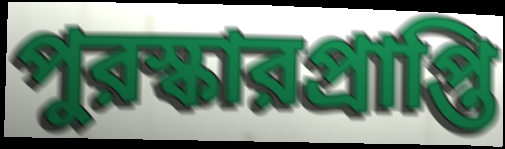
পুরস্কারপ্রাপ্তি